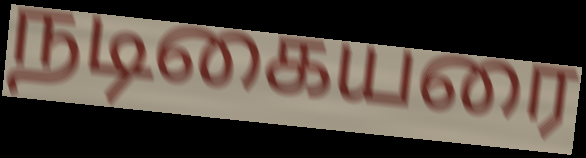
நடிகையரை